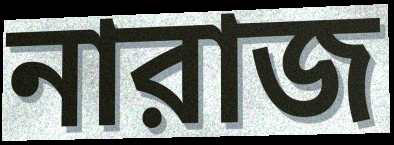
নারাজ